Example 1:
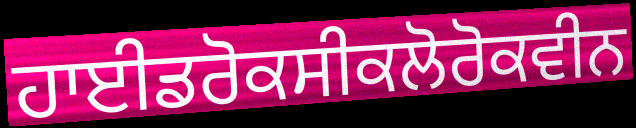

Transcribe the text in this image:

ਹਾਈਡਰੋਕਸੀਕਲੋਰੋਕਵੀਨ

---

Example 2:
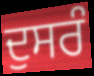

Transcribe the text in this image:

ਦੁਸਰੰ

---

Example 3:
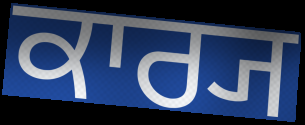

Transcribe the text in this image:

ਕਾਰ੍ਯ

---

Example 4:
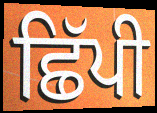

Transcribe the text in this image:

ਛਿੱਪੀ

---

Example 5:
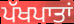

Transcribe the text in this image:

ਪੱਖਪਾਤਾਂ